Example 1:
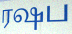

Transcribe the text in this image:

ரஷப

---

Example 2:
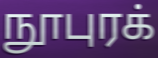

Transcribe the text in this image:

நூபுரக்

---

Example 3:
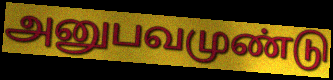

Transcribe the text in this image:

அனுபவமுண்டு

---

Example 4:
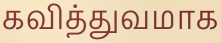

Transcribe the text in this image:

கவித்துவமாக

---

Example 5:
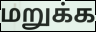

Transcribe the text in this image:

மறுக்க